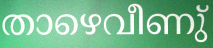
താഴെവീണു്